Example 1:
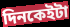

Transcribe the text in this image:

দিনকেইটা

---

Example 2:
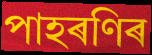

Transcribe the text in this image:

পাহৰণিৰ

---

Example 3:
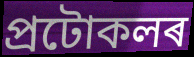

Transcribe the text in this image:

প্ৰটোকলৰ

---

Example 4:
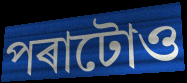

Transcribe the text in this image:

পৰাটোও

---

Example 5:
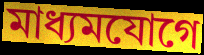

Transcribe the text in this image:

মাধ্যমযোগে